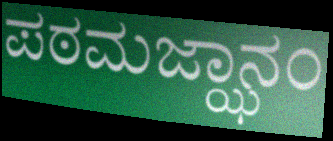
ಪಠಮಜ್ಝಾನಂ